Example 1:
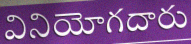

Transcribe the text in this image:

వినియోగదారు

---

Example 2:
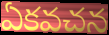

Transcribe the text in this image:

ఏకవచన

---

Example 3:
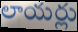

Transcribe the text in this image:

లాయర్లు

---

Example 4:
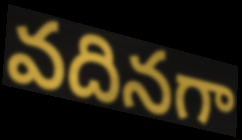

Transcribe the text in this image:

వదినగా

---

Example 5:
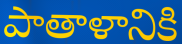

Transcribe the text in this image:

పాతాళానికి